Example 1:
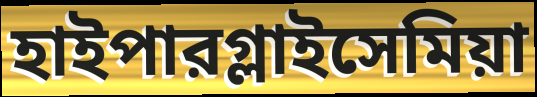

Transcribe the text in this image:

হাইপারগ্লাইসেমিয়া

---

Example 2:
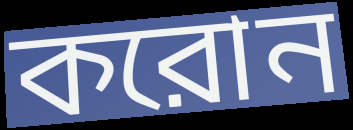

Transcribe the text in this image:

করোন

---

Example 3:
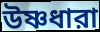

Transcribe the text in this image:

উষ্ণধারা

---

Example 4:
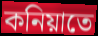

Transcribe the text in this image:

কনিয়াতে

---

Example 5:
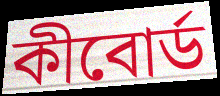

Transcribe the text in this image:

কীবোর্ড